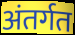
अंतर्गत